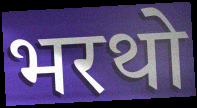
भरथो